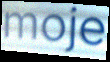
moje